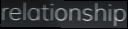
relationship